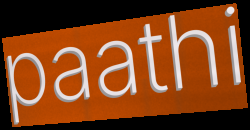
paathi